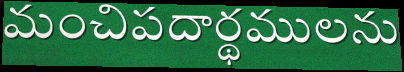
మంచిపదార్థములను